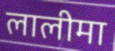
लालीमा